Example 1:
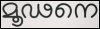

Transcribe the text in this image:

മൂഢനെ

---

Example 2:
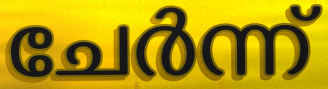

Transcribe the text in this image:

ചേർന്ന്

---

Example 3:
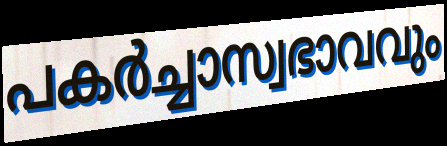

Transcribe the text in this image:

പകർച്ചാസ്വഭാവവും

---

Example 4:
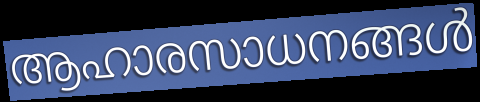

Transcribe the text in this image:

ആഹാരസാധനങ്ങൾ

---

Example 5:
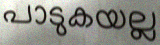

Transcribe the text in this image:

പാടുകയല്ല